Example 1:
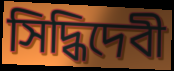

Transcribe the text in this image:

সিদ্ধিদেবী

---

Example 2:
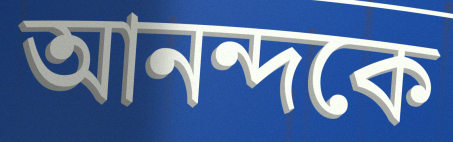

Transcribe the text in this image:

আনন্দকে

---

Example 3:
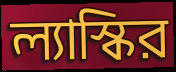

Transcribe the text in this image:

ল্যাস্কির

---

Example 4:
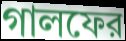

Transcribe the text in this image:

গালফের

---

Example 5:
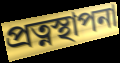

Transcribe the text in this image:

প্রত্নস্থাপনা